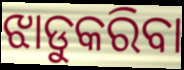
ଝାଡୁକରିବା